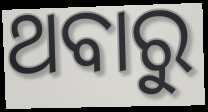
ଥବାରୁ